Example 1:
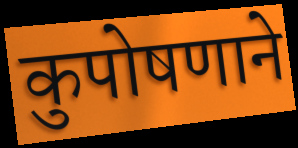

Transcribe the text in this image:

कुपोषणाने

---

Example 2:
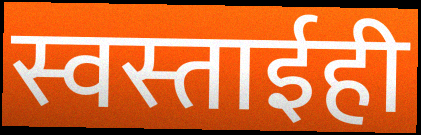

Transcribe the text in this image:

स्वस्ताईही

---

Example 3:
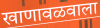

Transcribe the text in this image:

खाणावळवाला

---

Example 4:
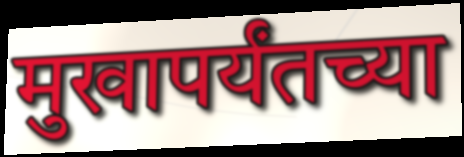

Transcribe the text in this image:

मुखापर्यंतच्या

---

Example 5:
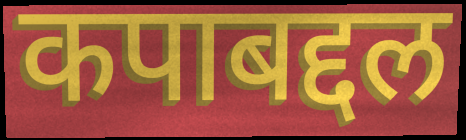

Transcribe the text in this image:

कपाबद्दल